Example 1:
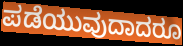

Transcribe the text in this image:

ಪಡೆಯುವುದಾದರೂ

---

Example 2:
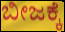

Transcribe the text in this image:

ಬೀಜಕ್ಕೆ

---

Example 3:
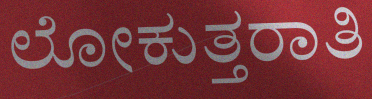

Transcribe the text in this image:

ಲೋಕುತ್ತರಾತಿ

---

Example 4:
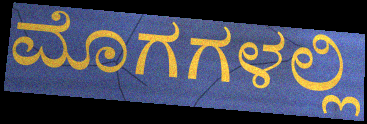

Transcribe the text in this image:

ಮೊಗಗಳಲ್ಲಿ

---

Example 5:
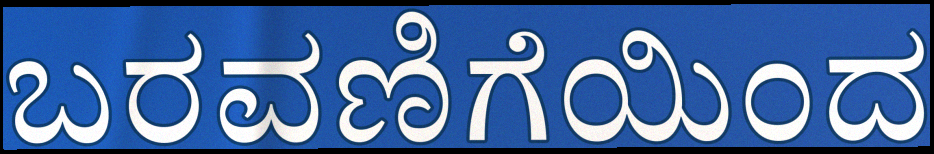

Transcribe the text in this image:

ಬರವಣಿಗೆಯಿಂದ